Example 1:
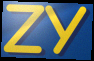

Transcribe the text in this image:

ZY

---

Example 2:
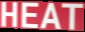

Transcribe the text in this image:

HEAT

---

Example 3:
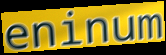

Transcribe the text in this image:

eninum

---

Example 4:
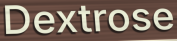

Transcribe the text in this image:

Dextrose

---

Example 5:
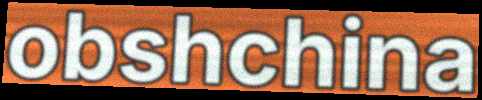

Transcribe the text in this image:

obshchina